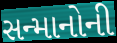
સન્માનોની